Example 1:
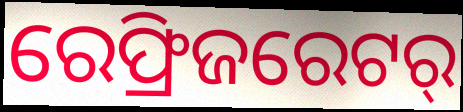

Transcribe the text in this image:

ରେଫ୍ରିଜରେଟର୍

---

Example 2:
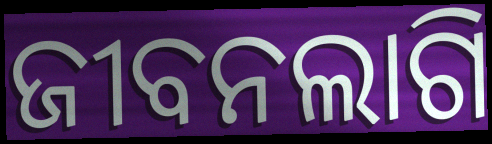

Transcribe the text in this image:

ଜୀବନଲାଗି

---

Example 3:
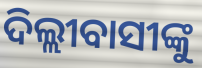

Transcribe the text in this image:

ଦିଲ୍ଲୀବାସୀଙ୍କୁ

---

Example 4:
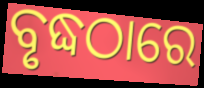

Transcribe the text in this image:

ବୃଦ୍ଧଠାରେ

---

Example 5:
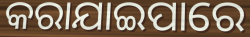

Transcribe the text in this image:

କରାଯାଇପାରେ